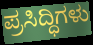
ಪ್ರಸಿದ್ಧಿಗಳು